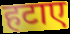
हटाए